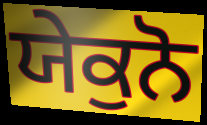
ਯੇਕੁਨੋ